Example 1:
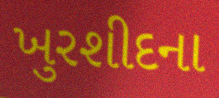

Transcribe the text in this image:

ખુરશીદના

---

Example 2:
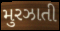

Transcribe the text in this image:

મુરઝાતી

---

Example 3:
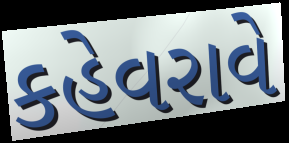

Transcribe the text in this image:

કહેવરાવે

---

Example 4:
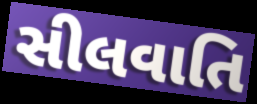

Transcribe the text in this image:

સીલવાતિ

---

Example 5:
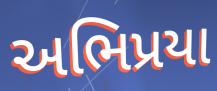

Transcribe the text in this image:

અભિપ્રયા